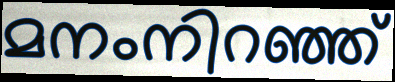
മനംനിറഞ്ഞ്